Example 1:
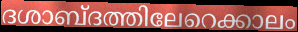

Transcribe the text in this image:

ദശാബ്ദത്തിലേറെക്കാലം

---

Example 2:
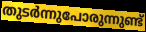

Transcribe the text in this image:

തുടർന്നുപോരുന്നുണ്ട്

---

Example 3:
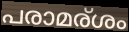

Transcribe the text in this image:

പരാമര്ശം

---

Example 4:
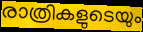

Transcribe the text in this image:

രാത്രികളുടെയും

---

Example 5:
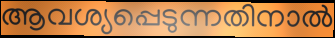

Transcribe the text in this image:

ആവശ്യപ്പെടുന്നതിനാൽ